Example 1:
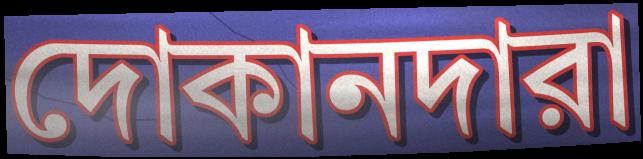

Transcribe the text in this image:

দোকানদারা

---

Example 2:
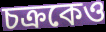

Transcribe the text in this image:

চক্রকেও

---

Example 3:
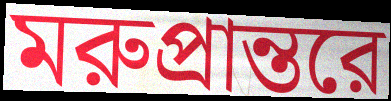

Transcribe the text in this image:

মরুপ্রান্তরে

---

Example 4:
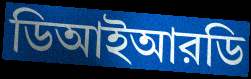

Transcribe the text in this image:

ডিআইআরডি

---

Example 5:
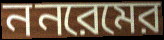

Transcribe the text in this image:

ননরেমের